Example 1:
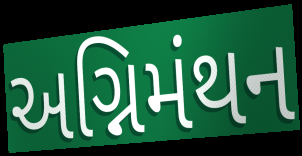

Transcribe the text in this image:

અગ્નિમંથન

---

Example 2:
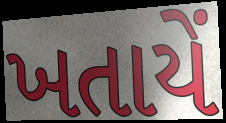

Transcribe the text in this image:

ખતાયેં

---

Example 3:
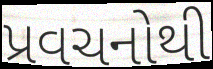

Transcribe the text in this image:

પ્રવચનોથી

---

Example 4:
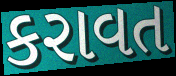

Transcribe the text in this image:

કરાવત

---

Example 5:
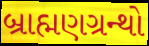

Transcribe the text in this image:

બ્રાહ્મણગ્રન્થો